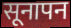
सूनापन